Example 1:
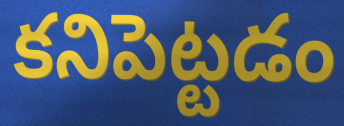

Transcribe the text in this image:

కనిపెట్టడం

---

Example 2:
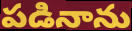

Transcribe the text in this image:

పడినాను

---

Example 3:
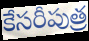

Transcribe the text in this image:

కేసరీపుత్ర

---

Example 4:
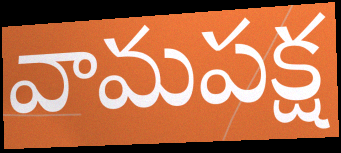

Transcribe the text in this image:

వామపక్ష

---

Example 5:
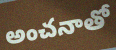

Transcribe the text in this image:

అంచనాతో